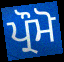
ਪ੍ਰੌਮੋ